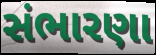
સંભારણા